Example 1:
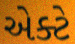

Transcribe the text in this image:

એક્ટે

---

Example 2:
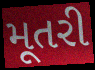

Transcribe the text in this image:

મૂતરી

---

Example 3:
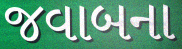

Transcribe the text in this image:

જવાબના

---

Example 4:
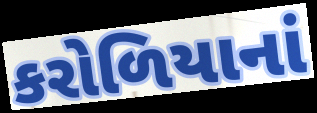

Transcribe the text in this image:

કરોળિયાનાં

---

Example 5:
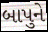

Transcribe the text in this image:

બાપુને